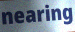
nearing